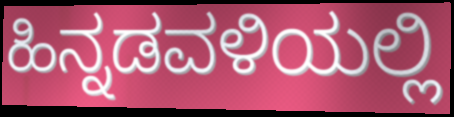
ಹಿನ್ನಡವಳಿಯಲ್ಲಿ